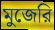
মুজেরি